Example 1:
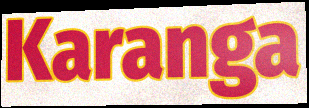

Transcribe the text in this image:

Karanga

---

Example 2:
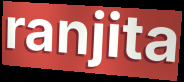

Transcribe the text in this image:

ranjita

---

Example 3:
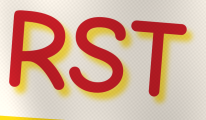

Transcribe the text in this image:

RST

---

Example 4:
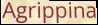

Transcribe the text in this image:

Agrippina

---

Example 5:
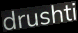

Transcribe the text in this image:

drushti